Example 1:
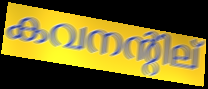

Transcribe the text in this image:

കവനന്റില്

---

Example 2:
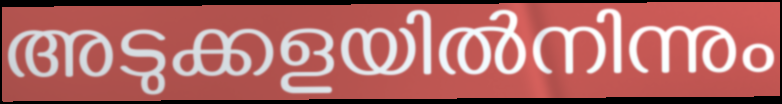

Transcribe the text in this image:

അടുക്കളയിൽനിന്നും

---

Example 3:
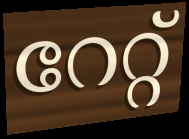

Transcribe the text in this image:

റേറ്റ്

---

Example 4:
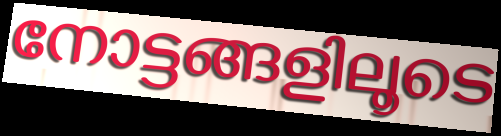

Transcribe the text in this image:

നോട്ടങ്ങളിലൂടെ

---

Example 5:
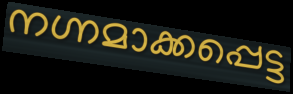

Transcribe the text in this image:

നഗ്നമാക്കപ്പെട്ട